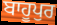
ਬਾਹੂਪੁਰ